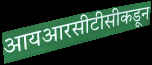
आयआरसीटीसीकडून